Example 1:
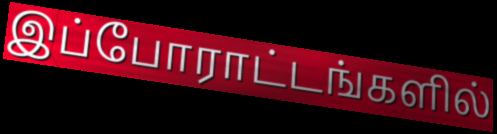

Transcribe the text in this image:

இப்போராட்டங்களில்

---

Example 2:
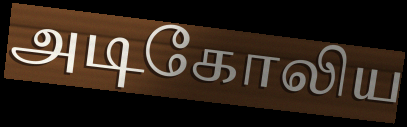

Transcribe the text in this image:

அடிகோலிய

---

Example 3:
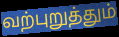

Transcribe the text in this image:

வற்புறுத்தும்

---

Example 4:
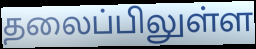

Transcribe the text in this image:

தலைப்பிலுள்ள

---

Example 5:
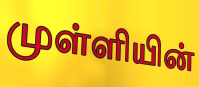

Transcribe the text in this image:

முள்ளியின்